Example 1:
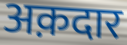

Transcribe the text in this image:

अक़दार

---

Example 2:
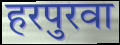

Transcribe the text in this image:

हरपुरवा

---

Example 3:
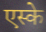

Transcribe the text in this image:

एस्के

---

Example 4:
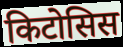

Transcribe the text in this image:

किटोसिस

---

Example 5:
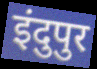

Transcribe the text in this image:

इंदुपुर